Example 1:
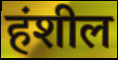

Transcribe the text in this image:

हंशील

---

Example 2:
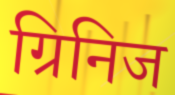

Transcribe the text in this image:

ग्रिनिज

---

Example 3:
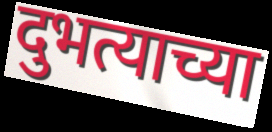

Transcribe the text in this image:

दुभत्याच्या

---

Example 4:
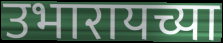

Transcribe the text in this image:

उभारायच्या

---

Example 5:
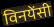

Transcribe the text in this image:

विनयेंसी